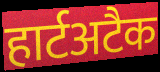
हार्टअटैक